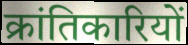
क्रांतिकारियों